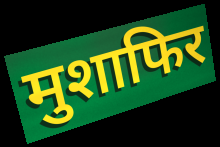
मुशाफिर